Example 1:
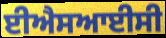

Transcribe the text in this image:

ਈਐਸਆਈਸੀ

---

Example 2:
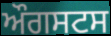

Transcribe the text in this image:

ਔਗਸਟਸ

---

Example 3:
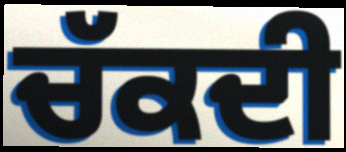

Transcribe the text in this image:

ਚੱਕਦੀ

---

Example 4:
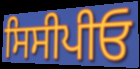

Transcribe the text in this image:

ਸਿਸੀਪੀਓ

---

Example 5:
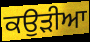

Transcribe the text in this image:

ਕਉੜੀਆ